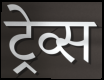
ट्रेव्स